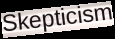
Skepticism